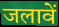
जलावें